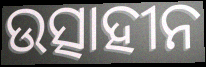
ଉତ୍ସାହୀନ